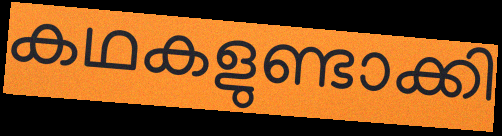
കഥകളുണ്ടാക്കി